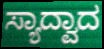
ಸ್ಯಾದ್ವಾದ